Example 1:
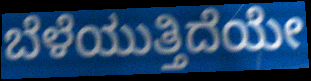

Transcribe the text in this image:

ಬೆಳೆಯುತ್ತಿದೆಯೇ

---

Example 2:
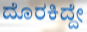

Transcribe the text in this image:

ದೊರಕಿದ್ದೇ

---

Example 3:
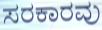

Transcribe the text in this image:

ಸರಕಾರವು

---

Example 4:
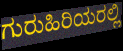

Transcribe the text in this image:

ಗುರುಹಿರಿಯರಲ್ಲಿ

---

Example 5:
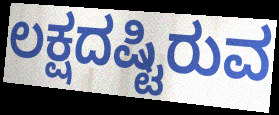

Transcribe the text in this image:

ಲಕ್ಷದಷ್ಟಿರುವ